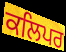
ਕਲਿਪਰ